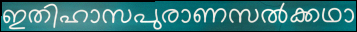
ഇതിഹാസപുരാണസൽക്കഥാ